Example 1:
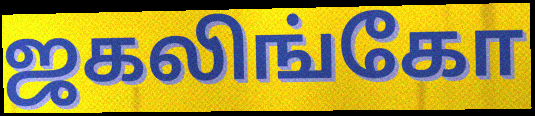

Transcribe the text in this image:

ஜகலிங்கோ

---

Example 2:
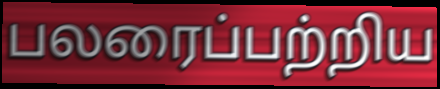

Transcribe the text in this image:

பலரைப்பற்றிய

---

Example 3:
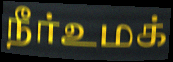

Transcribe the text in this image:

நீர்உமக்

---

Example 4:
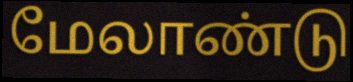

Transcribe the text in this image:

மேலாண்டு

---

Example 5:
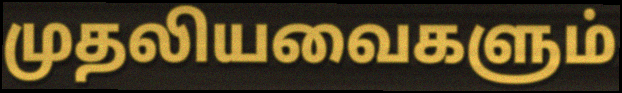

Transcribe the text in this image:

முதலியவைகளும்